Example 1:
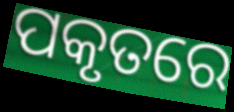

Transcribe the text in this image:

ପକୃତରେ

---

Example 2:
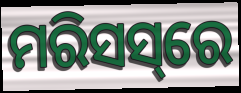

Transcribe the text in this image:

ମରିସସ୍‌ରେ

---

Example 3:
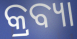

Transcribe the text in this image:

କ୍ରବ୍ୟା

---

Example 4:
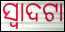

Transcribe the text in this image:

ସ୍ଵାଦଟା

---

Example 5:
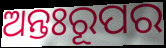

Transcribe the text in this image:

ଅନ୍ତଃରୂପର